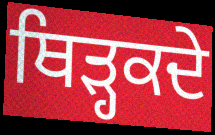
ਥਿੜ੍ਹਕਦੇ